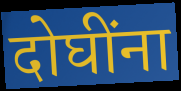
दोघींना